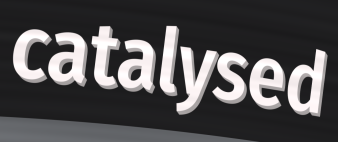
catalysed